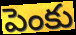
పెంకు